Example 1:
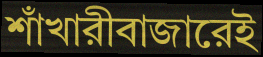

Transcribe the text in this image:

শাঁখারীবাজারেই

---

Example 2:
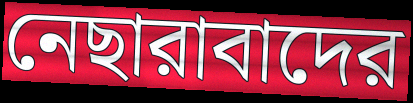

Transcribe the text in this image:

নেছারাবাদের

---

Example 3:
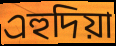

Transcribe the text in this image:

এহুদিয়া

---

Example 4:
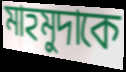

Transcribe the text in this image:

মাহমুদাকে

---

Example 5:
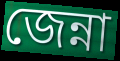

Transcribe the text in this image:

জেন্না